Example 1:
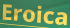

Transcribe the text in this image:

Eroica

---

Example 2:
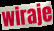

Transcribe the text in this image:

wiraje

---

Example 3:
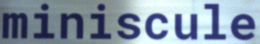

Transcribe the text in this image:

miniscule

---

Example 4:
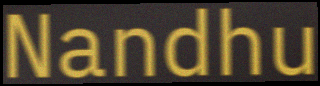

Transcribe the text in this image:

Nandhu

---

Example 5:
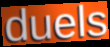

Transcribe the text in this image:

duels